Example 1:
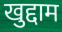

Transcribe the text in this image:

खुद्दाम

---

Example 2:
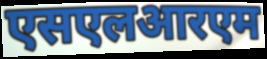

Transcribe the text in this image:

एसएलआरएम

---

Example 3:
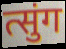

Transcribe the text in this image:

त्सुंग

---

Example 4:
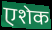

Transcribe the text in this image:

एशेक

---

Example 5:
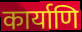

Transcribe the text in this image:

कार्याणि